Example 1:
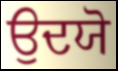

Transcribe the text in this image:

ਉਦਯੋ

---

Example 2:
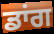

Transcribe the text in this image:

ਡਾਂਗ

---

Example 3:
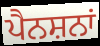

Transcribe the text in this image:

ਪੈਨਸ਼ਨਾਂ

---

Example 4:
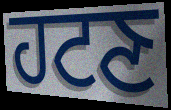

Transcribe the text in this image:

ਹਟਣ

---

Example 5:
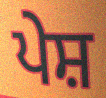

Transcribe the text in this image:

ਪੇਸ਼